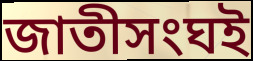
জাতীসংঘই